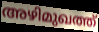
അഴിമുഖത്ത്